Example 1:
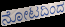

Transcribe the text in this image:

ನೋಟದಿಂದ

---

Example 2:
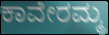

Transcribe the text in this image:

ಕಾವೇರಮ್ಮ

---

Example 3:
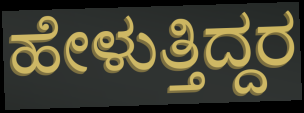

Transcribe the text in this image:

ಹೇಳುತ್ತಿದ್ದರ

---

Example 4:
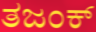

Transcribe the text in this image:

ತಜಂಕ್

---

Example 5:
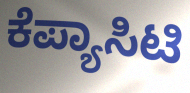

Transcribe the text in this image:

ಕೆಪ್ಯಾಸಿಟಿ